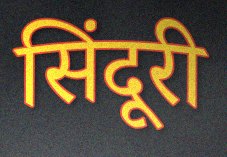
सिंदूरी